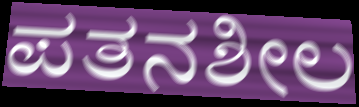
ಪತನಶೀಲ